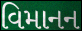
વિમાનન